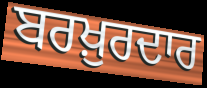
ਬਰਖ਼ੁਰਦਾਰ